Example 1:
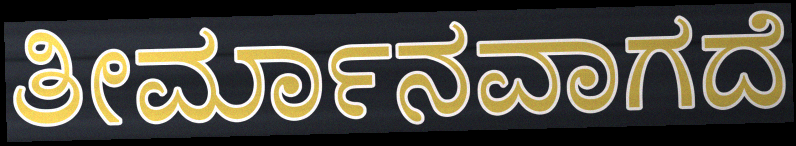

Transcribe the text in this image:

ತೀರ್ಮಾನವಾಗದೆ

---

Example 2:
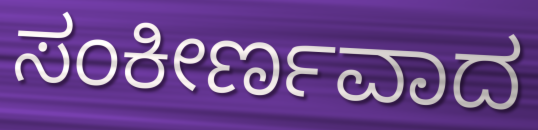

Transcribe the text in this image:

ಸಂಕೀರ್ಣವಾದ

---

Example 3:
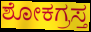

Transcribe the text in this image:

ಶೋಕಗ್ರಸ್ತ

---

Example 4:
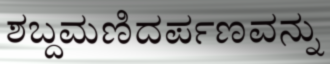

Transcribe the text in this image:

ಶಬ್ದಮಣಿದರ್ಪಣವನ್ನು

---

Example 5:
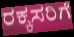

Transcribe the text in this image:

ರಕ್ಕಸರಿಗೆ